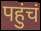
पहुंचं